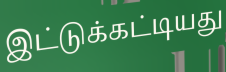
இட்டுக்கட்டியது